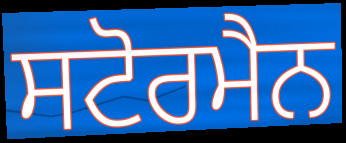
ਸਟੋਰਮੈਨ